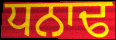
ਧਨਾਢ